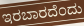
ಇರಬಾರದೆಂದು